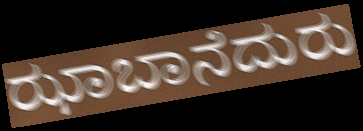
ಝಾಬಾನೆದುರು